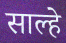
साल्हे